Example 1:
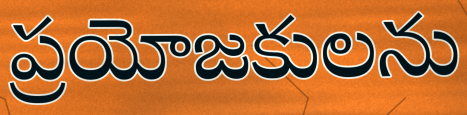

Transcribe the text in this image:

ప్రయోజకులను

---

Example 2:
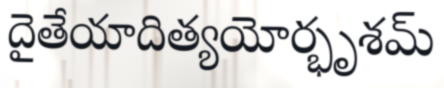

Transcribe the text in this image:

దైతేయాదిత్యయోర్భృశమ్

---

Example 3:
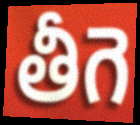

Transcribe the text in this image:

తీగె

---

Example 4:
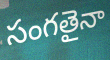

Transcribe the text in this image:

సంగతైనా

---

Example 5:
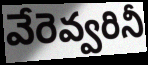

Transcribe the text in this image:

వేరెవ్వరినీ